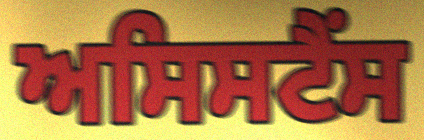
ਅਸਿਸਟੈਂਸ